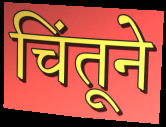
चिंतूने